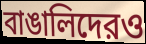
বাঙালিদেরও